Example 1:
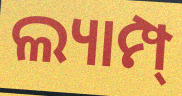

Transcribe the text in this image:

ଲ୍ୟାମ୍ପ୍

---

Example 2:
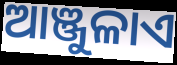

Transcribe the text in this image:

ଆଞ୍ଜୁଳାଏ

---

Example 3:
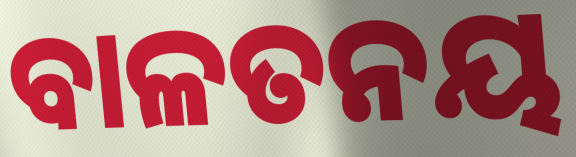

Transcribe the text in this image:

ବାଳତନୟ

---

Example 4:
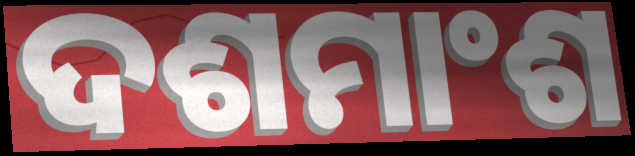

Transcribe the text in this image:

ଦଶମାଂଶ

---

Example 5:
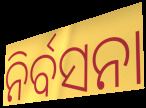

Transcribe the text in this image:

ନିର୍ବସନା